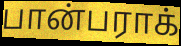
பான்பராக்